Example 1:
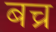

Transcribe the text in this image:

बच्र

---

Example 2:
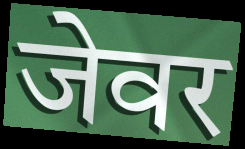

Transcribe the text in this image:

जेवर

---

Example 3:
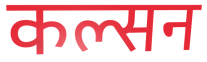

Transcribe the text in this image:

कल्सन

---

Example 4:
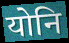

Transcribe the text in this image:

योनि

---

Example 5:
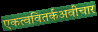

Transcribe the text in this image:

एकत्ववितर्कअवीचार